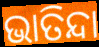
ଭାତିନ୍ଦା